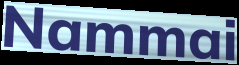
Nammai